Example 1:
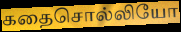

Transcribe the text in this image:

கதைசொல்லியோ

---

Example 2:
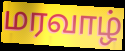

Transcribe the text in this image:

மரவாழ்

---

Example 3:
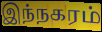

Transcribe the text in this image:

இந்நகரம்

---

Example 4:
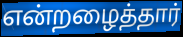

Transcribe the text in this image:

என்றழைத்தார்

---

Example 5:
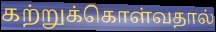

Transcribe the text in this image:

கற்றுக்கொள்வதால்